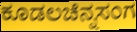
ಕೂಡಲಚೆನ್ನಸಂಗ